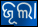
ଜୂଲା